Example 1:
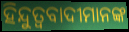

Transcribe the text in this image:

ହିନ୍ଦୁତ୍ଵବାଦୀମାନଙ୍କ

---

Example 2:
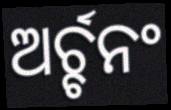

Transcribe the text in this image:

ଅର୍ଚ୍ଚନଂ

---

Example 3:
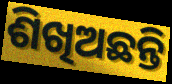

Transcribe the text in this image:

ଶିଖିଅଛନ୍ତି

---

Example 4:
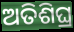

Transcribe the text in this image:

ଅତିଶିଘ୍ର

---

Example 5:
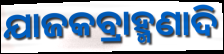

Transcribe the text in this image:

ଯାଜକବ୍ରାହ୍ମଣାଦି